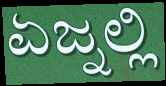
ಏಜ್ನಲ್ಲಿ